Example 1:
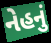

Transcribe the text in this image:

નેહનું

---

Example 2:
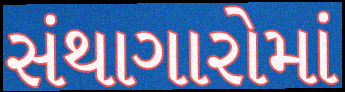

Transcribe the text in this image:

સંથાગારોમાં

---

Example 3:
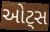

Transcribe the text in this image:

ઓટ્સ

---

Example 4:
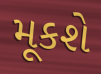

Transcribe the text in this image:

મૂકશે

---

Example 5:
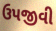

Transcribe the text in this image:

ઉપજીવી